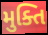
મુક્તિ